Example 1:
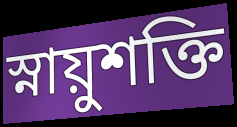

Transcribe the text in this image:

স্নায়ুশক্তি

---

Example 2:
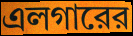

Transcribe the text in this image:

এলগারের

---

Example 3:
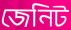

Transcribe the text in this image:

জেনিট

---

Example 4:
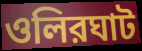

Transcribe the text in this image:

ওলিরঘাট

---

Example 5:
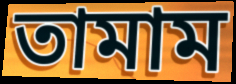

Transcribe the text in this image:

তামাম